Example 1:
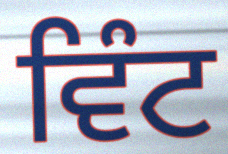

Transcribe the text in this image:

ਵਿੰਟ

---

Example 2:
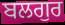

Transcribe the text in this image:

ਬਲਗੁਰ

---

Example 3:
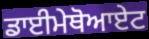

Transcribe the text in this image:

ਡਾਈਮੇਥੋਆਏਟ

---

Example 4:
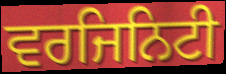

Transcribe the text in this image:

ਵਰਜਿਨਿਟੀ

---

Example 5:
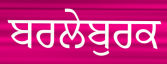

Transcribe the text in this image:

ਬਰਲੇਬੁਰਕ